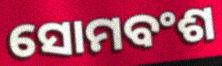
ସୋମବଂଶ